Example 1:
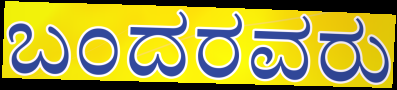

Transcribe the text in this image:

ಬಂದರವರು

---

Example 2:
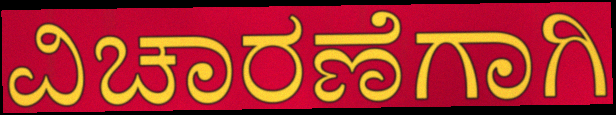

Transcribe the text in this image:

ವಿಚಾರಣೆಗಾಗಿ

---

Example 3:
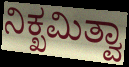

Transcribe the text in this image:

ನಿಕ್ಖಮಿತ್ವಾ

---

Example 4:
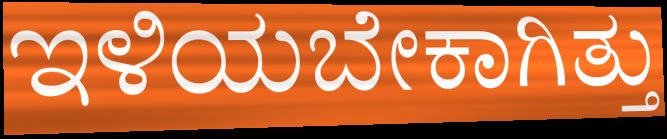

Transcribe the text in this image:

ಇಳಿಯಬೇಕಾಗಿತ್ತು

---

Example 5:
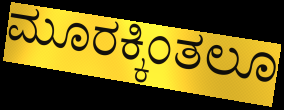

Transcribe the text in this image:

ಮೂರಕ್ಕಿಂತಲೂ